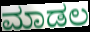
ಮಾಡಲ